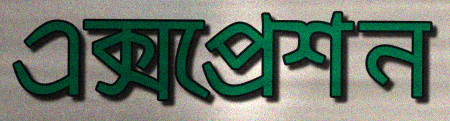
এক্সপ্রেশন